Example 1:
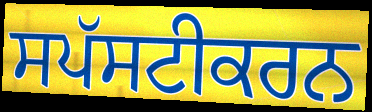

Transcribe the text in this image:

ਸਪੱਸਟੀਕਰਨ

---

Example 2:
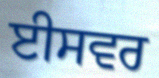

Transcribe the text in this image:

ਈਸਵਰ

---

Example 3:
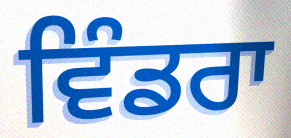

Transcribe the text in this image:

ਵਿੰਡਰਾ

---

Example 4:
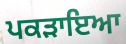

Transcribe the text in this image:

ਪਕੜਾਇਆ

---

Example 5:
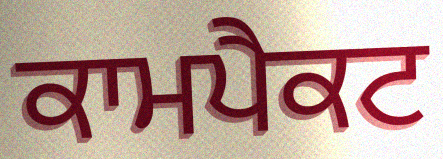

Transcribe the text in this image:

ਕਾਮਪੈਕਟ